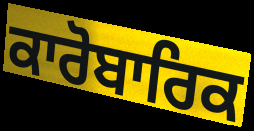
ਕਾਰੋਬਾਰਿਕ